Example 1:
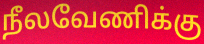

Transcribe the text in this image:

நீலவேணிக்கு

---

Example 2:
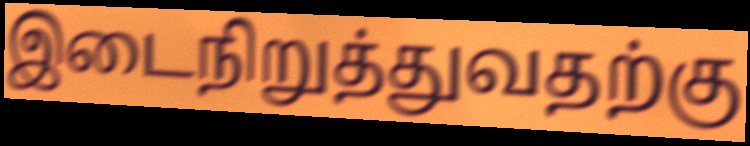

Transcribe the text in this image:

இடைநிறுத்துவதற்கு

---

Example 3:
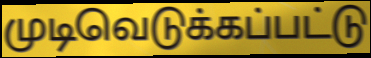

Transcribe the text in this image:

முடிவெடுக்கப்பட்டு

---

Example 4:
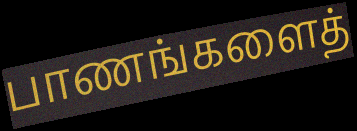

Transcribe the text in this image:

பாணங்களைத்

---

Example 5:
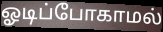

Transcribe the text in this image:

ஓடிப்போகாமல்